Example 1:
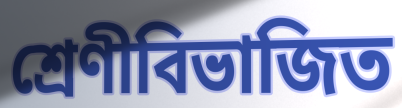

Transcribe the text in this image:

শ্রেণীবিভাজিত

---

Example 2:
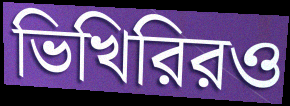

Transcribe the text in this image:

ভিখিরিরও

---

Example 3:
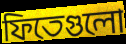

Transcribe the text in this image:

ফিতেগুলো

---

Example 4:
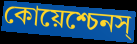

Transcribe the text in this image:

কোয়েশ্চেনস্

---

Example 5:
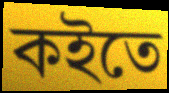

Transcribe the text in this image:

কইতে